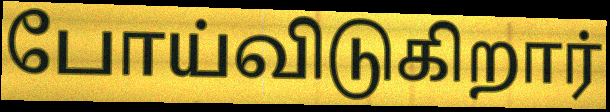
போய்விடுகிறார்